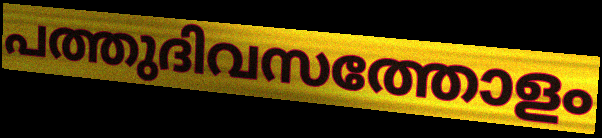
പത്തുദിവസത്തോളം